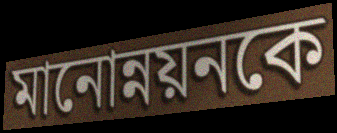
মানোন্নয়নকে